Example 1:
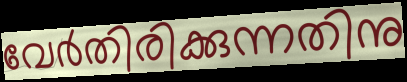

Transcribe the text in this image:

വേർതിരിക്കുന്നതിനു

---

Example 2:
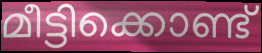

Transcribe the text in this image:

മീട്ടിക്കൊണ്ട്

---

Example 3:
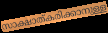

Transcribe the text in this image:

സാക്ഷാത്കരിക്കാനുള്ള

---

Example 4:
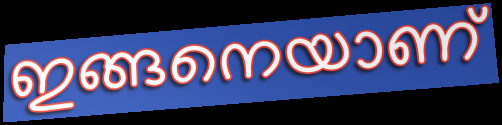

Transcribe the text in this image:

ഇങ്ങനെയാണ്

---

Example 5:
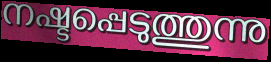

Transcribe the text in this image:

നഷ്ടപ്പെടുത്തുന്നു